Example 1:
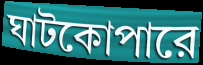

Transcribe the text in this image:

ঘাটকোপারে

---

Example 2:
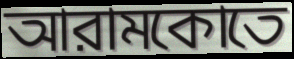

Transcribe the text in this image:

আরামকোতে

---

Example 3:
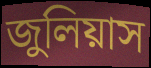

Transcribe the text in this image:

জুলিয়াস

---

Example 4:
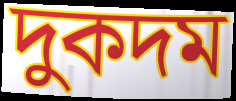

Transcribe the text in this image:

দুকদম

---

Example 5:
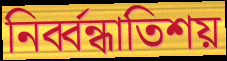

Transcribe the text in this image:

নির্ব্বন্ধাতিশয়